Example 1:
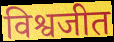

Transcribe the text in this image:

विश्वजीत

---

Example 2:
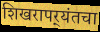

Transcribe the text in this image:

शिखरापर्यंतचा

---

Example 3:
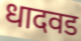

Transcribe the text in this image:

धादवड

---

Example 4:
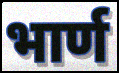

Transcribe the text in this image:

भार्ण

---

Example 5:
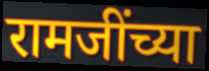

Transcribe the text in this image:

रामजींच्या